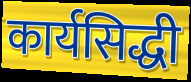
कार्यसिद्धी